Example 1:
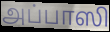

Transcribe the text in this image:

அப்பாஸி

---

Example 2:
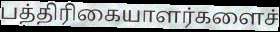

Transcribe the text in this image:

பத்திரிகையாளர்களைச்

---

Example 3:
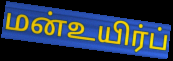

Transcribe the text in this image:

மன்உயிர்ப்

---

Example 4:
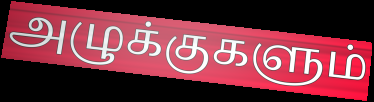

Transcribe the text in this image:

அழுக்குகளும்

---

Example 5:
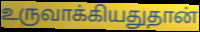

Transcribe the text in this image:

உருவாக்கியதுதான்